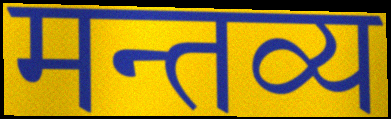
मन्तव्य